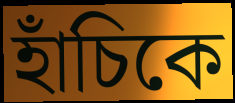
হাঁচিকে